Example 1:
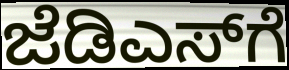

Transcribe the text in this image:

ಜೆಡಿಎಸ್‌ಗೆ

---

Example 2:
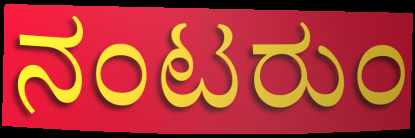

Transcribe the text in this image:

ನಂಟರುಂ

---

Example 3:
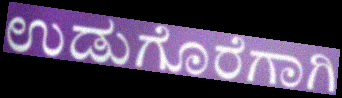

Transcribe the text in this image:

ಉಡುಗೊರೆಗಾಗಿ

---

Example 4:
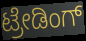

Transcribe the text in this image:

ಟ್ರೇಡಿಂಗ್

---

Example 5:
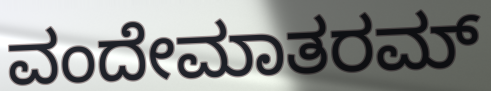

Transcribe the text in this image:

ವಂದೇಮಾತರಮ್